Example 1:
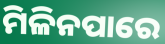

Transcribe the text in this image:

ମିଳିନପାରେ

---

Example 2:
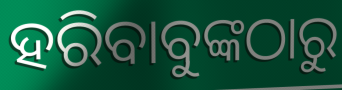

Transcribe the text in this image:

ହରିବାବୁଙ୍କଠାରୁ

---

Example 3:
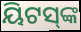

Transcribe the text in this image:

ୟିଟସ୍‌ଙ୍କ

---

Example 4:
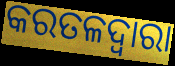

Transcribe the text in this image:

କରତଳଦ୍ଵାରା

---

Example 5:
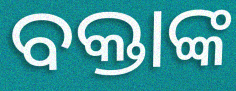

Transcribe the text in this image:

ବକ୍ତାଙ୍କ